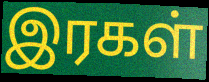
இரகள்